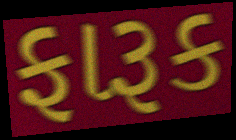
ફારૂક